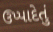
ઉપ્પાદેતું